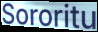
Sororitu